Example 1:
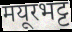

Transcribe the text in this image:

मयूरभट्ट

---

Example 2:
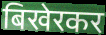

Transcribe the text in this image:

बिखेरकर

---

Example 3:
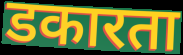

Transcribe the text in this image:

डकारता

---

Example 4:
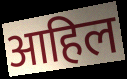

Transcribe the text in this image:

आहिल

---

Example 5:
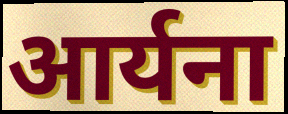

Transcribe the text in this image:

आर्यना